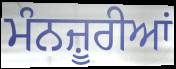
ਮੰਨਜ਼ੂਰੀਆਂ